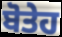
ਬੋਤੇਹ